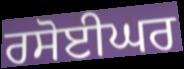
ਰਸੋਈਘਰ